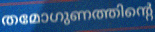
തമോഗുണത്തിന്റെ